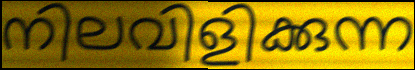
നിലവിളിക്കുന്ന